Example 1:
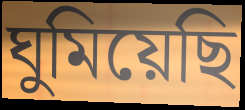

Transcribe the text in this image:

ঘুমিয়েছি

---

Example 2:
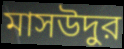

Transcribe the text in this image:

মাসউদুর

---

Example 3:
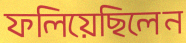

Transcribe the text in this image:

ফলিয়েছিলেন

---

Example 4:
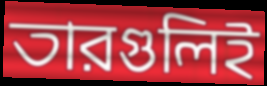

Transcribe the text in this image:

তারগুলিই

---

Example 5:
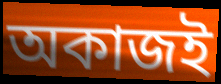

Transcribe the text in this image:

অকাজই